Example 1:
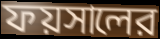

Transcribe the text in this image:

ফয়সালের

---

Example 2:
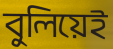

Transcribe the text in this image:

বুলিয়েই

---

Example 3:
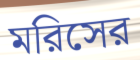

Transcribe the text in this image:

মরিসের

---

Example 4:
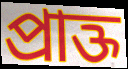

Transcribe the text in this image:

প্রাক্ত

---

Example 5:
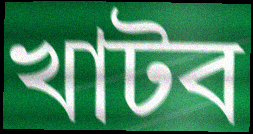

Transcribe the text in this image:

খাটব